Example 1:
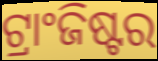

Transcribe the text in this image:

ଟ୍ରାଂଜିଷ୍ଟର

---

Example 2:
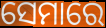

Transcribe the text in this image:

ସେମାରେ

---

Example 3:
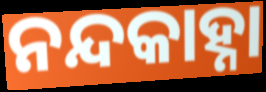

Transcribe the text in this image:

ନନ୍ଦକାହ୍ନା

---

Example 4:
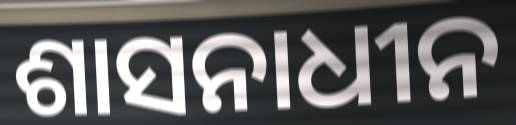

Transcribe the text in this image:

ଶାସନାଧୀନ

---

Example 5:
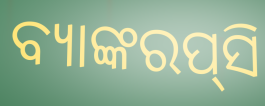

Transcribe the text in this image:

ବ୍ୟାଙ୍କରପ୍‌ସି